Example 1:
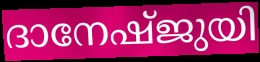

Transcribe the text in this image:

ദാനേഷ്ജുയി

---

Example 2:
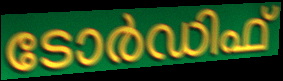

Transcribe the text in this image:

ടോർഡിഫ്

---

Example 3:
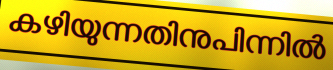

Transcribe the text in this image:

കഴിയുന്നതിനുപിന്നിൽ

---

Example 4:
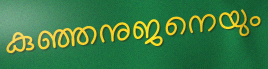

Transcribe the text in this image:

കുഞ്ഞനുജനെയും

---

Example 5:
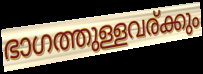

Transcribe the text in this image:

ഭാഗത്തുള്ളവര്ക്കും